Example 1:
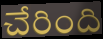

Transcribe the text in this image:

చేరింది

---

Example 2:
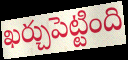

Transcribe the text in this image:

ఖర్చుపెట్టింది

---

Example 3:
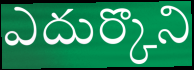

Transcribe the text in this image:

ఎదుర్కొని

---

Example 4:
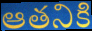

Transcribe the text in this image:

ఆతనికి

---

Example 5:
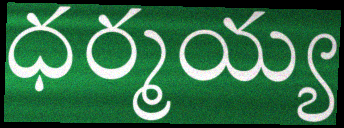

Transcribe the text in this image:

ధర్మయ్య